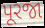
પૂરજા